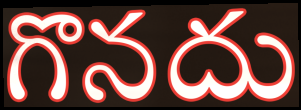
గొనదు